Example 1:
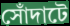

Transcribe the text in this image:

সোঁদাটে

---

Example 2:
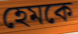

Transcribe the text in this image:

হেমকে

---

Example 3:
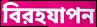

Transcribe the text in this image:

বিরহযাপন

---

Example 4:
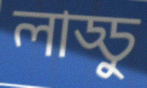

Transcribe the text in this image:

লাড্ডু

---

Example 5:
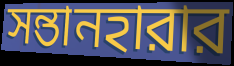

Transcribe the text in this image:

সন্তানহারার